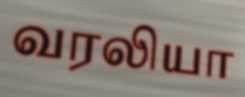
வரலியா